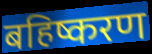
बहिष्करण